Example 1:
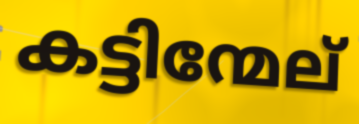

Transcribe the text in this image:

കട്ടിന്മേല്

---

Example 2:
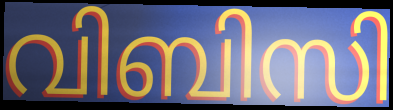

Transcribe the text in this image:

വിബിസി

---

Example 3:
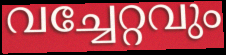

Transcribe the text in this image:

വച്ചേറ്റവും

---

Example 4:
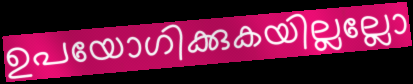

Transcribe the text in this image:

ഉപയോഗിക്കുകയില്ലല്ലോ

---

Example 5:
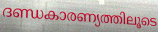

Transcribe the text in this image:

ദണ്ഡകാരണ്യത്തിലൂടെ